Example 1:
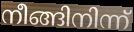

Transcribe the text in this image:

നീങ്ങിനിന്ന്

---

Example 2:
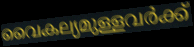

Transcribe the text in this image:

വൈകല്യമുള്ളവർക്ക്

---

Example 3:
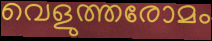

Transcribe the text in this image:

വെളുത്തരോമം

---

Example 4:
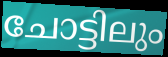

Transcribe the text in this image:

ചോട്ടിലും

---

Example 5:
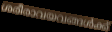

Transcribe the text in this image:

ശരീരാവയവങ്ങൾക്ക്